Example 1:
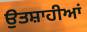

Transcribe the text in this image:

ਉਤਸ਼ਾਹੀਆਂ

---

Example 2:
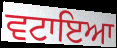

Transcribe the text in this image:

ਵਟਾਇਆ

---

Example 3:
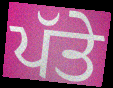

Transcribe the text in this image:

ਪੱਤੇ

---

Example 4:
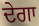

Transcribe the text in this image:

ਦੇਗਾ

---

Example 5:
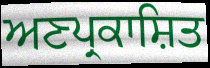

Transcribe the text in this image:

ਅਣਪ੍ਰਕਾਸ਼ਿਤ